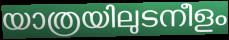
യാത്രയിലുടനീളം